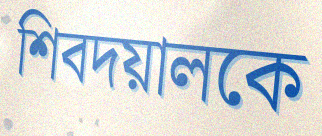
শিবদয়ালকে